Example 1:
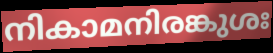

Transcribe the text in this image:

നികാമനിരങ്കുശഃ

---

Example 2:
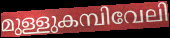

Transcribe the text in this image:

മുള്ളുകമ്പിവേലി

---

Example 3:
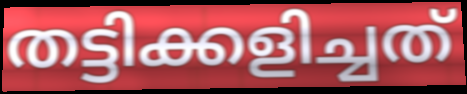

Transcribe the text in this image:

തട്ടിക്കളിച്ചത്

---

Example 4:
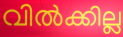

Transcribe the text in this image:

വിൽക്കില്ല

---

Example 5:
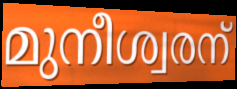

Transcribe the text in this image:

മുനീശ്വരന്